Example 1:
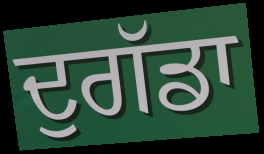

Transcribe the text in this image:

ਦੁਗੱਡਾ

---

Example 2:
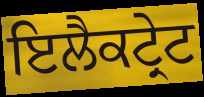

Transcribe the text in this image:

ਇਲੈਕਟ੍ਰੇਟ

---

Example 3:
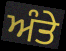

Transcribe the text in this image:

ਅੰਤੇ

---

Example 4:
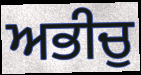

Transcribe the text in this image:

ਅਭੀਚੁ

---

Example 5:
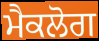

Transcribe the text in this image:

ਮੈਕਲੋਗ